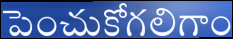
పెంచుకోగలిగాం